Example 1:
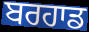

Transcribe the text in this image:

ਬਰਹਾਡ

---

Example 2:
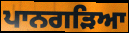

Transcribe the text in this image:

ਪਾਨਗੜਿਆ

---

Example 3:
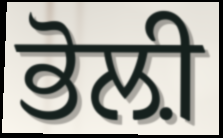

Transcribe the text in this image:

ਭੋਲ਼ੀ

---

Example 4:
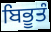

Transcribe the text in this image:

ਬਿਭੂਤੰ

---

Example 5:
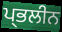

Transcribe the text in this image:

ਪ੍ਭਲੀਨ